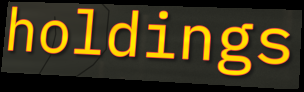
holdings